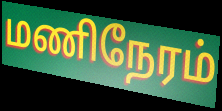
மணிநேரம்